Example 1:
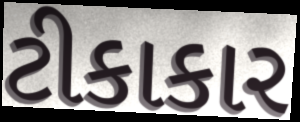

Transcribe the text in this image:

ટીકાકાર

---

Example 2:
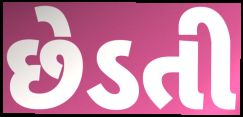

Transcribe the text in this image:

છેડતી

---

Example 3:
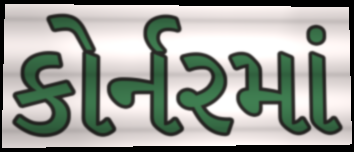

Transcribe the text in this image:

કોર્નરમાં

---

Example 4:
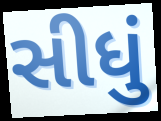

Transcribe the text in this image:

સીધું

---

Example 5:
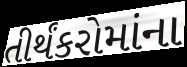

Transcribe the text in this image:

તીર્થંકરોમાંના